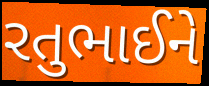
રતુભાઈને